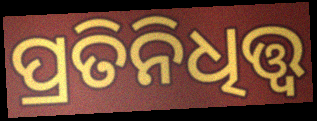
ପ୍ରତିନିଧିତ୍ତ୍ୱ